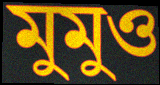
মুমুও